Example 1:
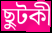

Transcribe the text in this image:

ছুটকী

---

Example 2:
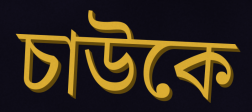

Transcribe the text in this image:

চাউকে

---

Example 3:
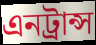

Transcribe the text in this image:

এনট্রান্স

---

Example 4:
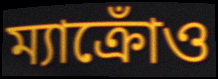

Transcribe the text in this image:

ম্যাক্রোঁও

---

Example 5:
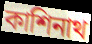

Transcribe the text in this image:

কাশিনাথ